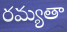
రమ్యతా